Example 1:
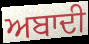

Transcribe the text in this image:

ਅਬਾਦੀ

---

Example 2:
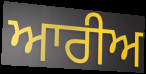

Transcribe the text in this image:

ਆਰੀਅ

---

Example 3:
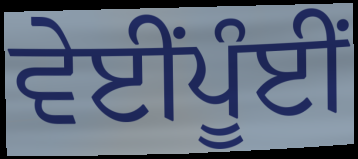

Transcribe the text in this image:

ਵੇਈਂਪੂੰਈਂ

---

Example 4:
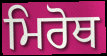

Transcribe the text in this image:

ਮਿਰੋਥ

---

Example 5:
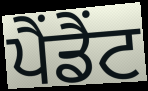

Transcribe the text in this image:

ਪੈਂਡੈਂਟ